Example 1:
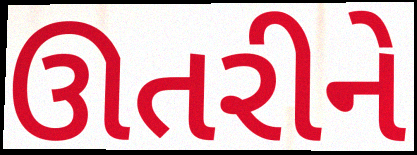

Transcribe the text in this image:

ઊતરીને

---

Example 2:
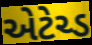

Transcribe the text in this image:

એટેચ્ડ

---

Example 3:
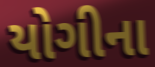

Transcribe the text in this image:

યોગીના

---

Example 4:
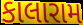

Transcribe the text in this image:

કાલારામ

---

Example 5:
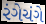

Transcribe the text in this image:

રંગેચંગે